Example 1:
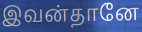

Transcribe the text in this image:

இவன்தானே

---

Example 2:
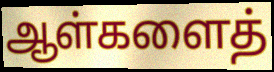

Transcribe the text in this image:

ஆள்களைத்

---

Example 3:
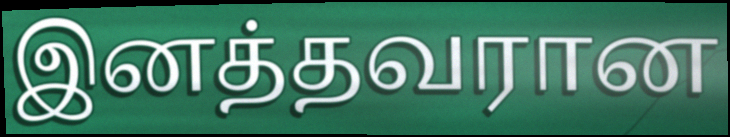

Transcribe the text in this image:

இனத்தவரான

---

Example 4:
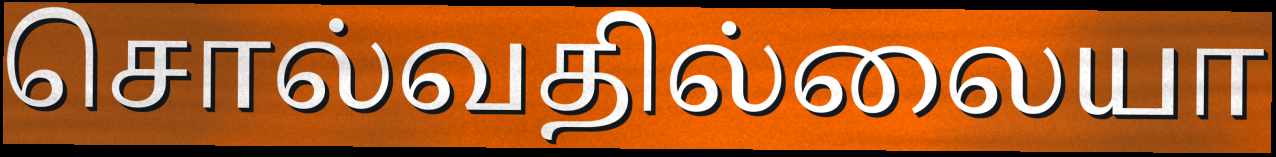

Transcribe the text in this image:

சொல்வதில்லையா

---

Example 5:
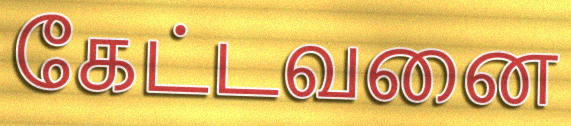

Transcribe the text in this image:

கேட்டவனை